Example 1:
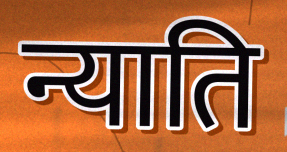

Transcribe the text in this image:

न्याति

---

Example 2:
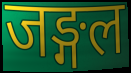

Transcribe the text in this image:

जङ्गल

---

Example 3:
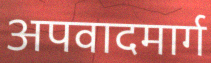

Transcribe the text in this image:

अपवादमार्ग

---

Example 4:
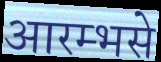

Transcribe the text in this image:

आरम्भसे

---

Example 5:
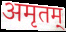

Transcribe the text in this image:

अमृतम्